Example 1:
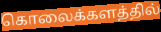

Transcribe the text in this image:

கொலைக்களத்தில்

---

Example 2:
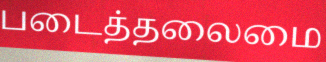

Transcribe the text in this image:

படைத்தலைமை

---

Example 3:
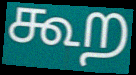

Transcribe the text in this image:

கூற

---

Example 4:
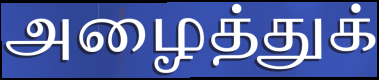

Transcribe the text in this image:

அழைத்துக்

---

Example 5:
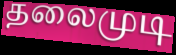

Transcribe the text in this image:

தலைமுடி